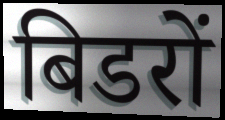
बिडरों